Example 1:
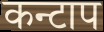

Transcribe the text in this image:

कन्टाप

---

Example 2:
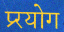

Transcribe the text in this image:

प्र्रयोग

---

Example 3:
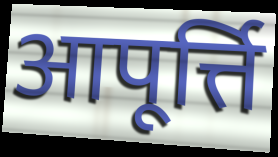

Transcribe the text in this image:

आपूर्त्ति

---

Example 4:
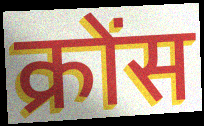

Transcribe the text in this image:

क्रोंस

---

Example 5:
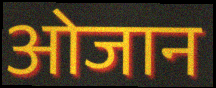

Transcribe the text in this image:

ओजान